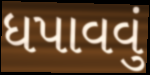
ધપાવવું